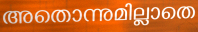
അതൊന്നുമില്ലാതെ